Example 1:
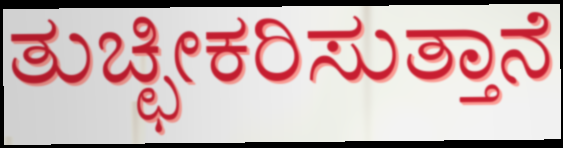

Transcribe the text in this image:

ತುಚ್ಛೀಕರಿಸುತ್ತಾನೆ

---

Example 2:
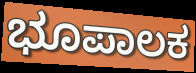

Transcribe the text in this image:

ಭೂಪಾಲಕ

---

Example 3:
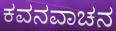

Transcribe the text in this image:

ಕವನವಾಚನ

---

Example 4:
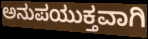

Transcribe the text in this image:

ಅನುಪಯುಕ್ತವಾಗಿ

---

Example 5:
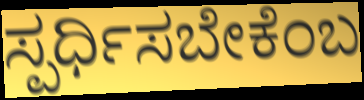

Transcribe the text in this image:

ಸ್ಪರ್ಧಿಸಬೇಕೆಂಬ